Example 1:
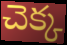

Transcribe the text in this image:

చెక్క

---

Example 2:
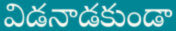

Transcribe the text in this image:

విడనాడకుండా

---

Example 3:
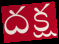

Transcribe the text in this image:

దక్ష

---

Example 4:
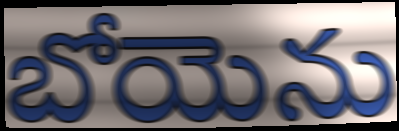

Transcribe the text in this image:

బోయెను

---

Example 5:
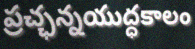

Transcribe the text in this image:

ప్రచ్ఛన్నయుద్ధకాలం